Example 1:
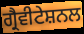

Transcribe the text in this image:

ਗ੍ਰੈਵੀਟੇਸ਼ਨਲ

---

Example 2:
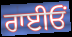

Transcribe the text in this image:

ਰਾਈਓਂ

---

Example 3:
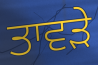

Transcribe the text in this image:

ਤਾਵੜੇ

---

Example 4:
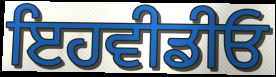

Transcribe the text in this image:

ਇਹਵੀਡੀਓ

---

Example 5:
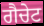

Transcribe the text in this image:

ਗੈਚੇਟ